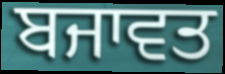
ਬਜਾਵਤ